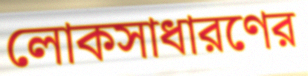
লোকসাধারণের